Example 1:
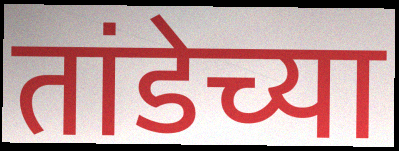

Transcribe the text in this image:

तांडेच्या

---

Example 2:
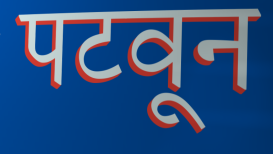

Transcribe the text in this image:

पटवून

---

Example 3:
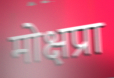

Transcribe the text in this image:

मोक्षप्रा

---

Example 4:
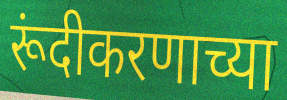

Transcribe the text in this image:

रूंदीकरणाच्या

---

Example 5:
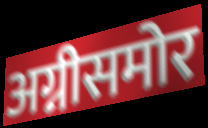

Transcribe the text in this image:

अग्नीसमोर